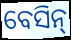
ବେସିନ୍